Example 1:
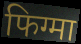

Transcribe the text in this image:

फिग्मा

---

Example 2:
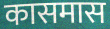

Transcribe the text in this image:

कासमास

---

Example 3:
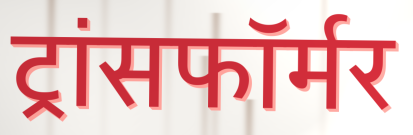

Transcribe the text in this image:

ट्रांसफॉर्मर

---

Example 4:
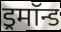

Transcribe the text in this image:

ड्रमॉन्ड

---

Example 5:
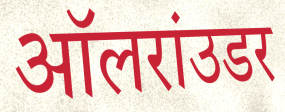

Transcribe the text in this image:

ऑलरांउडर